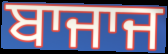
ਬਾਜਾਜ